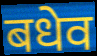
बधेव